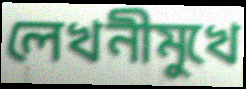
লেখনীমুখে